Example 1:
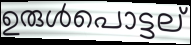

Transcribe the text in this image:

ഉരുൾപൊട്ടല്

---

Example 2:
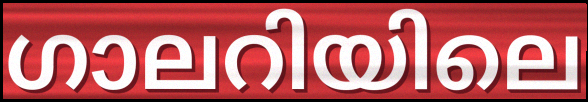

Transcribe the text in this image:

ഗാലറിയിലെ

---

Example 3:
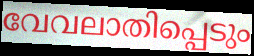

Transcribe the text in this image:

വേവലാതിപ്പെടും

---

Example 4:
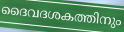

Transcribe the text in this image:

ദൈവദശകത്തിനും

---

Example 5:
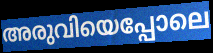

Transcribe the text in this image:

അരുവിയെപ്പോലെ